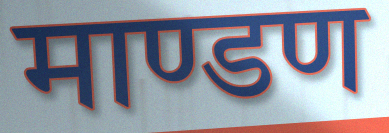
माण्डण